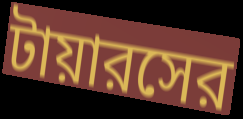
টায়ারসের